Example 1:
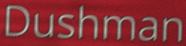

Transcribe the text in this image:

Dushman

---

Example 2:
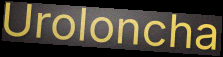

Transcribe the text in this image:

Uroloncha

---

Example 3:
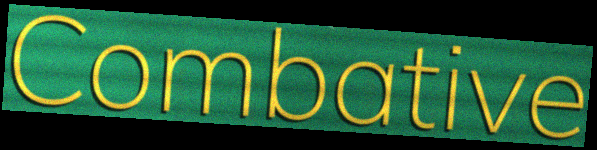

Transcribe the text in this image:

Combative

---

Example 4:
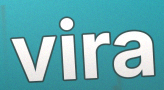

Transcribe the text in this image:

vira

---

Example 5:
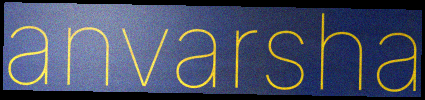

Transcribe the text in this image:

anvarsha